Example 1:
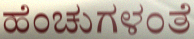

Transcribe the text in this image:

ಹೆಂಚುಗಳಂತೆ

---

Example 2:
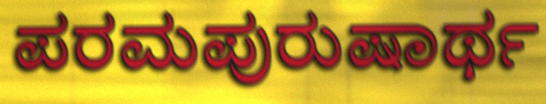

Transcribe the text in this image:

ಪರಮಪುರುಷಾರ್ಥ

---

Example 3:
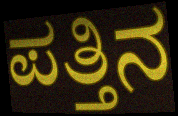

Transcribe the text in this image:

ಪತ್ತಿನ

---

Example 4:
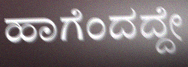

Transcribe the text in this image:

ಹಾಗೆಂದದ್ದೇ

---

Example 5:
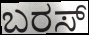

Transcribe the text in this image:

ಬರಸ್